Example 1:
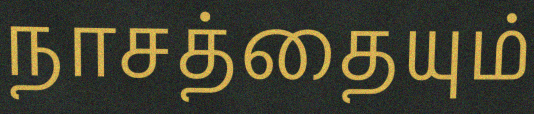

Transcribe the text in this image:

நாசத்தையும்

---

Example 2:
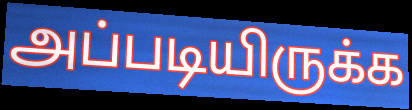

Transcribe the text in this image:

அப்படியிருக்க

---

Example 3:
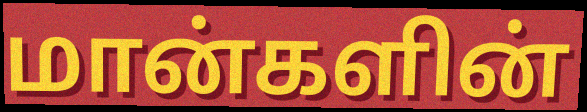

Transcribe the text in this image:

மான்களின்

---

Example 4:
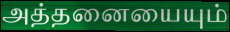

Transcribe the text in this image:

அத்தனையையும்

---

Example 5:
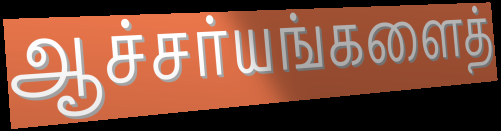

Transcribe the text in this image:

ஆச்சர்யங்களைத்